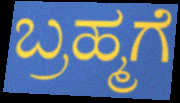
ಬ್ರಹ್ಮಗೆ